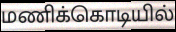
மணிக்கொடியில்